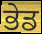
ਭੇਡ